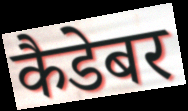
कैडेबर